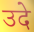
उदे